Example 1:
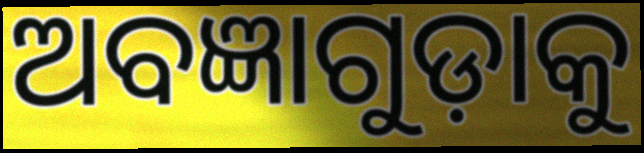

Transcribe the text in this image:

ଅବଜ୍ଞାଗୁଡ଼ାକୁ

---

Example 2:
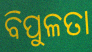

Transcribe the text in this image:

ବିପୁଳତା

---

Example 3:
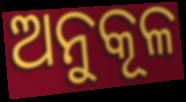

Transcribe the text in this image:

ଅନୁକୂଳ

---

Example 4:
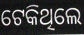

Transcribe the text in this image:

ଟେକିଥିଲେ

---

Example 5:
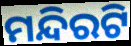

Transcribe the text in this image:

ମନ୍ଦିରଟି